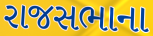
રાજસભાના